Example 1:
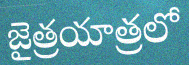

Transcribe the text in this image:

జైత్రయాత్రలో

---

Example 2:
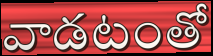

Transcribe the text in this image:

వాడటంతో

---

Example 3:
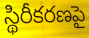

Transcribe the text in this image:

స్థిరీకరణపై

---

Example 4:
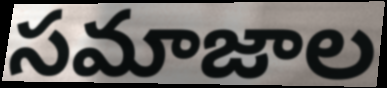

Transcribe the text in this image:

సమాజాల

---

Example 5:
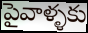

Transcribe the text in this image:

పైవాళ్ళకు